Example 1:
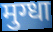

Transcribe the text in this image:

मुग्धा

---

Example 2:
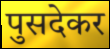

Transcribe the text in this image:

पुसदेकर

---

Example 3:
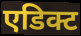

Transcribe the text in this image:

एडिक्ट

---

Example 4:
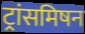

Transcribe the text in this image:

ट्रांसमिषन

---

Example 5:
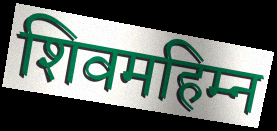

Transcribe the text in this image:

शिवमहिम्न